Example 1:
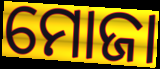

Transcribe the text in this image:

ମୋଜା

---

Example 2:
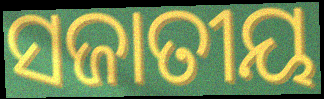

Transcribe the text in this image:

ସଜାତୀୟ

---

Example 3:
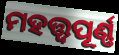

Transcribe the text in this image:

ମହତ୍ତ୍ଵପୂର୍ଣ୍ଣ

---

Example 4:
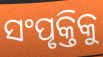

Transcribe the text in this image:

ସଂପୃକ୍ତିକୁ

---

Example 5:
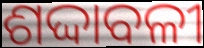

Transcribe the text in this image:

ଶଦ୍ଦାବଳୀ